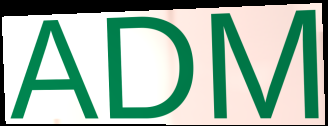
ADM